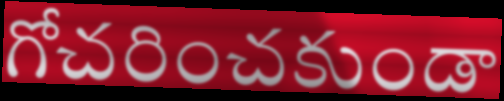
గోచరించకుండా